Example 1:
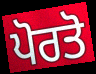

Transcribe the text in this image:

ਪੋਰਤੋ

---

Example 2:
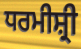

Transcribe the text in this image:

ਧਰਮੀਸ਼੍ਰੀ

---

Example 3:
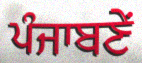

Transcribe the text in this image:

ਪੰਜਾਬਣੇਂ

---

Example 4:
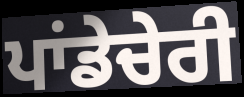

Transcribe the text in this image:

ਪਾਂਡੇਚੇਰੀ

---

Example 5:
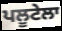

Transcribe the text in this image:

ਪਲੂਟੇਲਾ